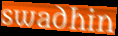
swadhin